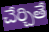
చేర్చితే